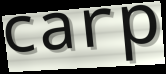
carp